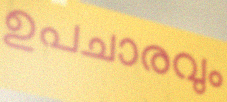
ഉപചാരവും